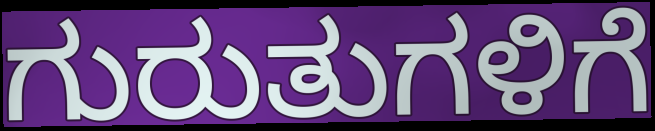
ಗುರುತುಗಳಿಗೆ